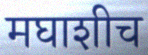
मघाशीच